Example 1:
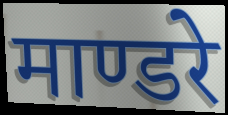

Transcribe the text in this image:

माण्डरे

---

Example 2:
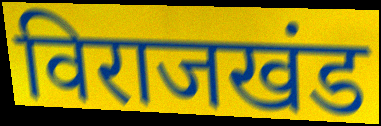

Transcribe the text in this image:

विराजखंड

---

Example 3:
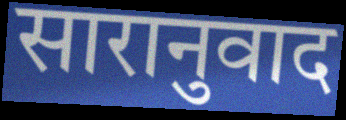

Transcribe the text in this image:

सारानुवाद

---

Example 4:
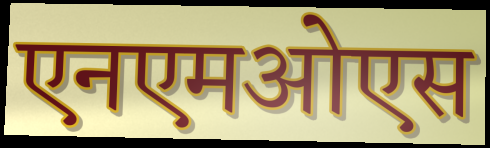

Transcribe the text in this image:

एनएमओएस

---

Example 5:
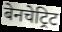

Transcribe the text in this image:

बेनचेट्रिट